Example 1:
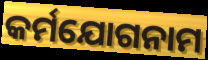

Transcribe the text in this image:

କର୍ମଯୋଗନାମ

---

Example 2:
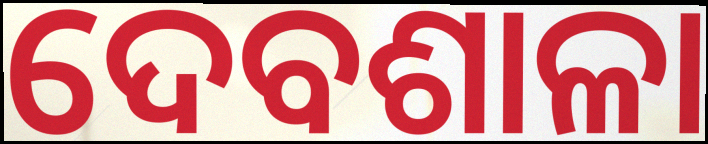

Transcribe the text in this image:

ଦେବଶାଳା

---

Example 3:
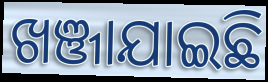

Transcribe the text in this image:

ଖଞ୍ଜାଯାଇଛି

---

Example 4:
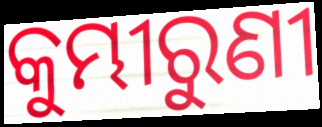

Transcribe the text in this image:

କୁମ୍ଭୀରୁଣୀ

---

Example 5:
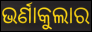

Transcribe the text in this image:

ଭର୍ଣାକୁଲାର